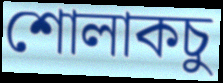
শোলাকচু